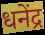
धनेंद्र